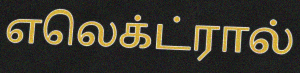
எலெக்ட்ரால்